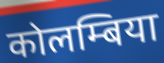
कोलम्बिया